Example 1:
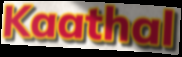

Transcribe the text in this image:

Kaathal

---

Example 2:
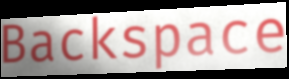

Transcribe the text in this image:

Backspace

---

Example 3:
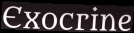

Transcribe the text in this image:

Exocrine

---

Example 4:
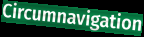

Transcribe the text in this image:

Circumnavigation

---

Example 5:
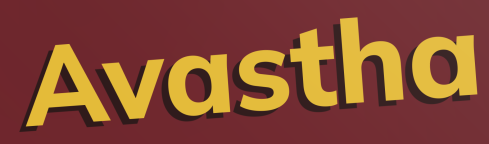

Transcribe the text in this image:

Avastha